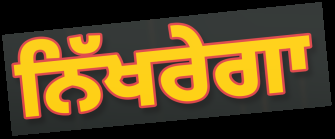
ਨਿੱਖਰੇਗਾ